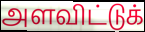
அளவிட்டுக்